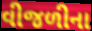
વીજળીના